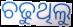
ଚଢୁଥିଲୁ